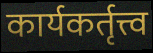
कार्यकर्तृत्त्व